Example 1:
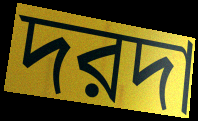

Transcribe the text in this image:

দরদা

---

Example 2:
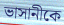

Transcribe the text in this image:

ভাসানীকে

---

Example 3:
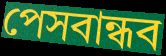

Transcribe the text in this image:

পেসবান্ধব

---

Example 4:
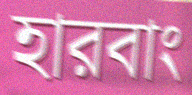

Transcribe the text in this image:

হারবাং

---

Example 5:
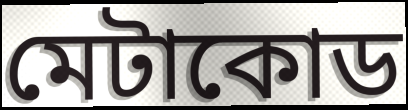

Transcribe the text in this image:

মেটাকোড